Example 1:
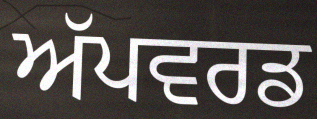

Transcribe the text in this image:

ਅੱਪਵਰਡ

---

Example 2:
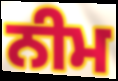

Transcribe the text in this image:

ਨੀਮ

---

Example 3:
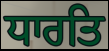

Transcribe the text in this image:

ਧਾਰਤਿ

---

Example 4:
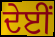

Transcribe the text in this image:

ਦੇਈਂ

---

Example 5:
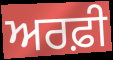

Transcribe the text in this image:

ਅਰਫ਼ੀ